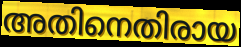
അതിനെതിരായ